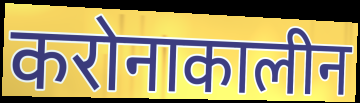
करोनाकालीन